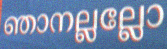
ഞാനല്ലല്ലോ